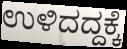
ಉಳಿದದ್ದಕ್ಕೆ